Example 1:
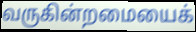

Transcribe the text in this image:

வருகின்றமையைக்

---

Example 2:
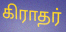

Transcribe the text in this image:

கிராதர்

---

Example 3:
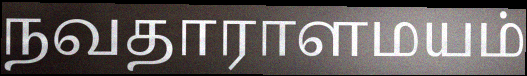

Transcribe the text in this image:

நவதாராளமயம்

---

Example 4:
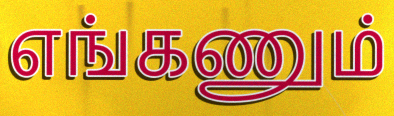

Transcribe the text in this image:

எங்கணும்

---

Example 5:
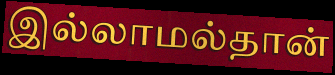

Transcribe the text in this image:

இல்லாமல்தான்